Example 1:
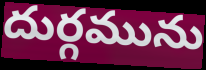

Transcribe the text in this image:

దుర్గమును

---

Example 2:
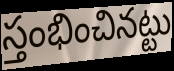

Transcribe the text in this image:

స్తంభించినట్టు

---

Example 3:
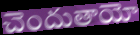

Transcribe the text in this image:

చెందుతాయో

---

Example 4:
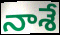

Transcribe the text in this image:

నాశే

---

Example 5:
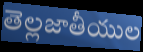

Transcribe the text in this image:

తెల్లజాతీయుల